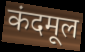
कंदमूल